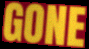
GONE